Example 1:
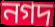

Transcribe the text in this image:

নগদ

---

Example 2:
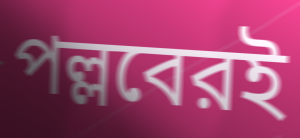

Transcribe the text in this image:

পল্লবেরই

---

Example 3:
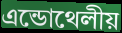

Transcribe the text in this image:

এন্ডোথেলীয়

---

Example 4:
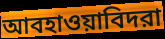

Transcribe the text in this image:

আবহাওয়াবিদরা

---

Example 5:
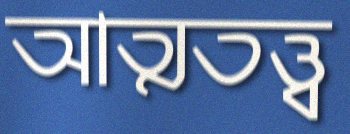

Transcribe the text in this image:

আত্মতত্ত্ব